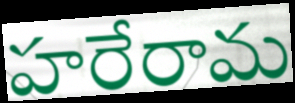
హరేరామ